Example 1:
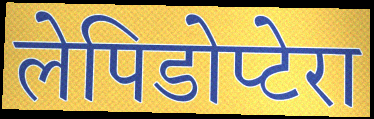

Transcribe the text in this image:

लेपिडोप्टेरा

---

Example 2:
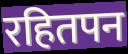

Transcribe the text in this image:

रहितपन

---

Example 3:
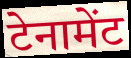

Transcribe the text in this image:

टेनामेंट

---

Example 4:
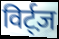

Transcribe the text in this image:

विर्ट्ज़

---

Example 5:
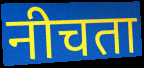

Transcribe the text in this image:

नीचता